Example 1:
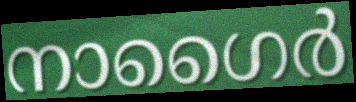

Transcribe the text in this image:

നാഗൈർ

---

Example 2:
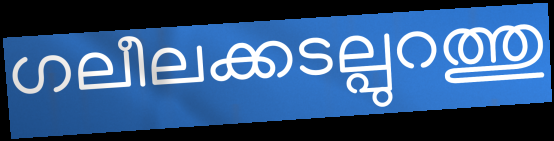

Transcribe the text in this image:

ഗലീലക്കടല്പുറത്തു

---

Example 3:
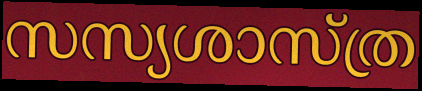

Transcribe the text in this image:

സസ്യശാസ്ത്ര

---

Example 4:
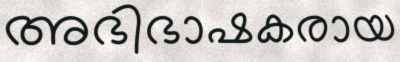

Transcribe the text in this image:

അഭിഭാഷകരായ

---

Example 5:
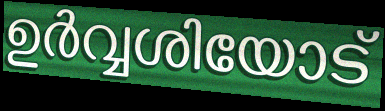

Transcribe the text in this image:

ഉർവ്വശിയോട്